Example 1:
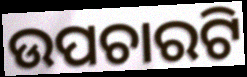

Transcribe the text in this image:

ଉପଚାରଟି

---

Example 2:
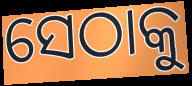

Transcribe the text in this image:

ସେଠାକୁ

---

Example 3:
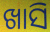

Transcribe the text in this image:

ଖାସି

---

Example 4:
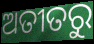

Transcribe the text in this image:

ଅତୀତରୁ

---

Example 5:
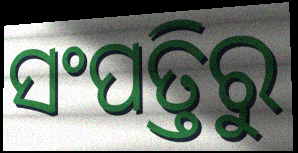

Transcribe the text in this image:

ସଂପତ୍ତିରୁ